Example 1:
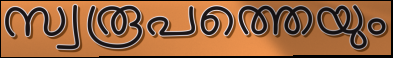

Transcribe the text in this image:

സ്വരൂപത്തെയും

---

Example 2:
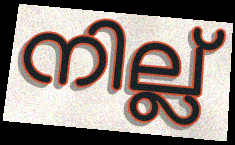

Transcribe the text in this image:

നില്ല്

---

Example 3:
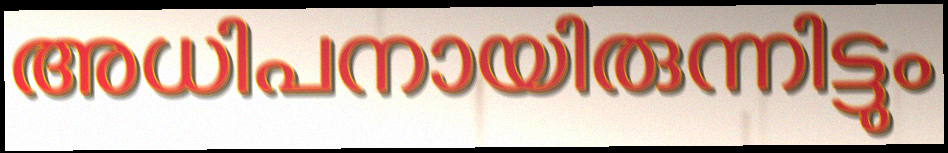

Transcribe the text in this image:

അധിപനായിരുന്നിട്ടും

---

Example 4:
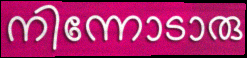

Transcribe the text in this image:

നിന്നോടാരു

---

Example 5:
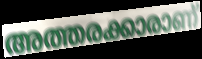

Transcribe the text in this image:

അത്തരക്കാരാണ്